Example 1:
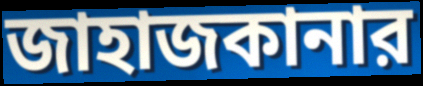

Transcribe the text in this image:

জাহাজকানার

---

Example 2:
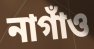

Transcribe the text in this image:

নাগাঁও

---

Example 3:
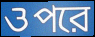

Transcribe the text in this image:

ওপরে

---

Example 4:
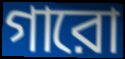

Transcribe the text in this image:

গারো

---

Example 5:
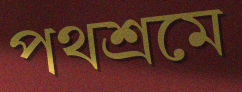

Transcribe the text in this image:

পথশ্রমে